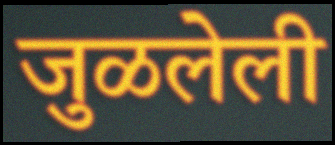
जुळलेली